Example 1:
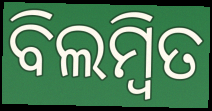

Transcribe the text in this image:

ବିଲମ୍ବିତ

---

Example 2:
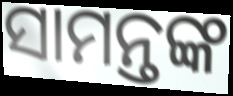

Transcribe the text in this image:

ସାମନ୍ତଙ୍କ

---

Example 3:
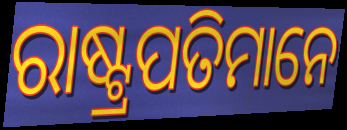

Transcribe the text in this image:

ରାଷ୍ଟ୍ରପତିମାନେ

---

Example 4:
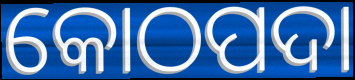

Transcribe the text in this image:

କୋଠପଦା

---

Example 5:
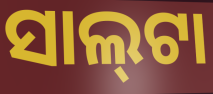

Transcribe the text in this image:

ସାଲ୍‌ଟା